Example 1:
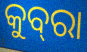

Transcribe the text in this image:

କୁବ୍‍ରା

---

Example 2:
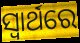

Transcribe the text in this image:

ସ୍ବାର୍ଥରେ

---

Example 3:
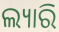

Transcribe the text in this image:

ଲ୍ୟାରି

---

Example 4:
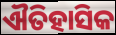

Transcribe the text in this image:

ଐତିହାସିକ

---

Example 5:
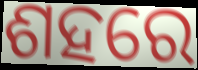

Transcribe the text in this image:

ଶହରେ